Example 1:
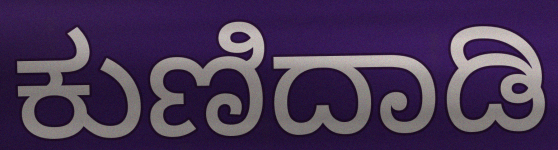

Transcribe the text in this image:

ಕುಣಿದಾಡಿ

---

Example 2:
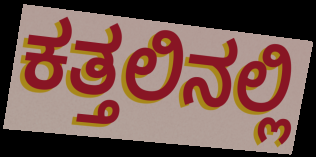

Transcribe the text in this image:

ಕತ್ತಲಿನಲ್ಲಿ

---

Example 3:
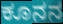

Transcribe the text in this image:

ಕೂನನ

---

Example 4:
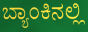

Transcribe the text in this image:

ಬ್ಯಾಂಕಿನಲ್ಲಿ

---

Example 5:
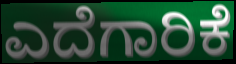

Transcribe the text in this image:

ಎದೆಗಾರಿಕೆ